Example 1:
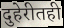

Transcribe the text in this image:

दुहेरीतही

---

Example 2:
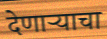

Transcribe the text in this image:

देणार्‍याचा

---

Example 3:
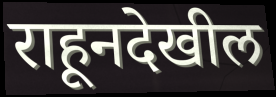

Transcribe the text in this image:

राहूनदेखील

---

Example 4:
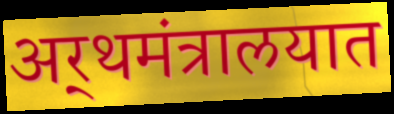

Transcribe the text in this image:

अर्थमंत्रालयात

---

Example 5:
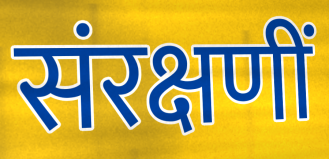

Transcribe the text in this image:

संरक्षणीं